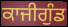
ਕਾਜੀਗੁੰਡ